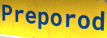
Preporod